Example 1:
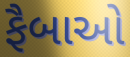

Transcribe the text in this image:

ફૈબાઓ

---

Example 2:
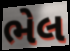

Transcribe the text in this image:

ભેલ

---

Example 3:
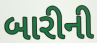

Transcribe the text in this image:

બારીની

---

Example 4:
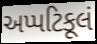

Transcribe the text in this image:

અપ્પટિકૂલં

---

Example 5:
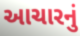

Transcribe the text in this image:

આચારનું